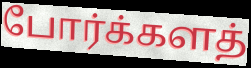
போர்க்களத்